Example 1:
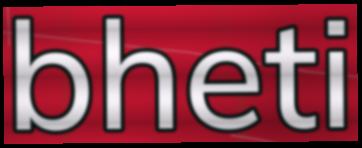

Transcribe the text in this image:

bheti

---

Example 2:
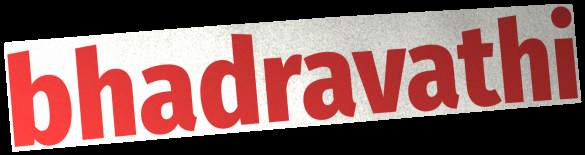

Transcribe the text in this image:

bhadravathi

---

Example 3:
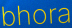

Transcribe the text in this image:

bhora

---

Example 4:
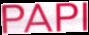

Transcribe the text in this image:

PAPI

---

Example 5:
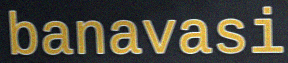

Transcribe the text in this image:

banavasi